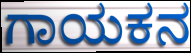
ಗಾಯಕನ